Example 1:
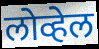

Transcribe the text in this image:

लोव्हेल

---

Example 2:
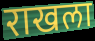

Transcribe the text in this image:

राखला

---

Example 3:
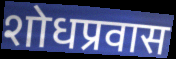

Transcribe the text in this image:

शोधप्रवास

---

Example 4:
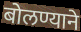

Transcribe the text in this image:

बोलण्याने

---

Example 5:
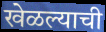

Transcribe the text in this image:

खेळल्याची